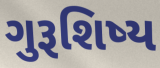
ગુરૂશિષ્ય